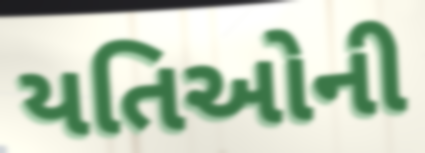
યતિઓની